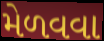
મેળવવા